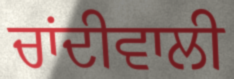
ਚਾਂਦੀਵਾਲੀ